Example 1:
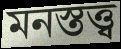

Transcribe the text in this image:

মনস্তত্ত্ব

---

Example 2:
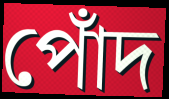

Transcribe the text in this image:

পোঁদ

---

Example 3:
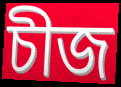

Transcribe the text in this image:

চীজ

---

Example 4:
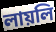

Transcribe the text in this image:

লায়লি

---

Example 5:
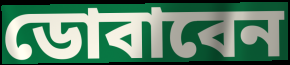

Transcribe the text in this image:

ডোবাবেন